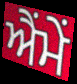
ਐਂਮੇਂ